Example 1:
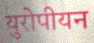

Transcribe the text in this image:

युरोपीयन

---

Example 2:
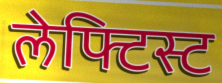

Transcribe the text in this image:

लेफ्टिस्ट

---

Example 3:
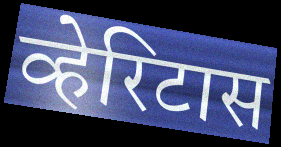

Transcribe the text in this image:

व्हेरिटास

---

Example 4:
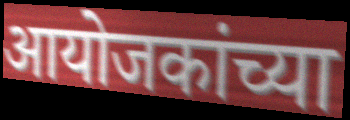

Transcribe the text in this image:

आयोजकांच्या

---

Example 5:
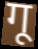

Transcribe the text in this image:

गू